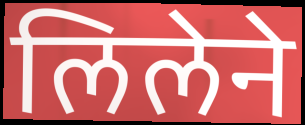
लिलेने